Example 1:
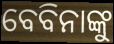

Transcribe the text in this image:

ବେବିନାଙ୍କୁ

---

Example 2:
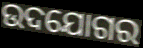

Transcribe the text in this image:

ଉଦଯୋଗର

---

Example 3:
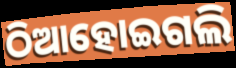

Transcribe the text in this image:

ଠିଆହୋଇଗଲି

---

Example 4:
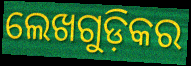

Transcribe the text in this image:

ଲେଖଗୁଡ଼ିକର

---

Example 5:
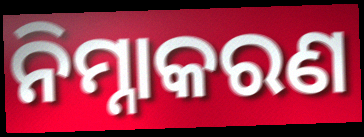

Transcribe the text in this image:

ନିମ୍ନାକରଣ